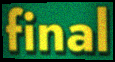
final